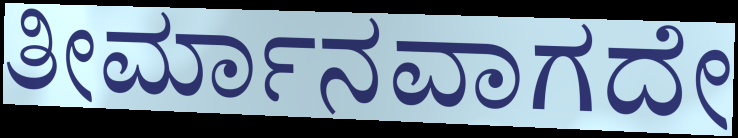
ತೀರ್ಮಾನವಾಗದೇ